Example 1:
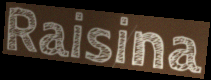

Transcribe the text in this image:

Raisina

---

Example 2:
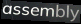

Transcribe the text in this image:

assembly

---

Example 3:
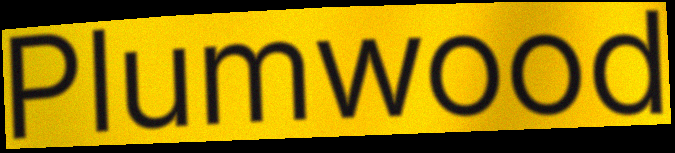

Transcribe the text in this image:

Plumwood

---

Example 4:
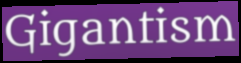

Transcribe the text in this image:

Gigantism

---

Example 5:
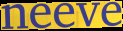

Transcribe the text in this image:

neeve